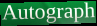
Autograph